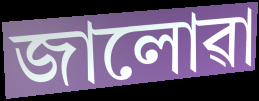
জালোৱা